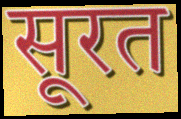
सूरत